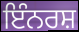
ਇੰਨਰਸ਼